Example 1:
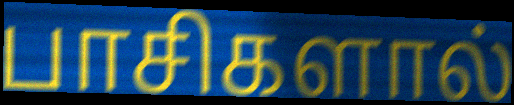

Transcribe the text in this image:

பாசிகளால்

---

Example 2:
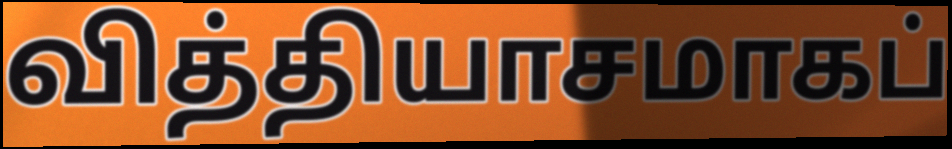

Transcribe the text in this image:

வித்தியாசமாகப்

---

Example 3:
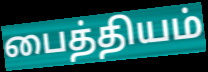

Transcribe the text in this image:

பைத்தியம்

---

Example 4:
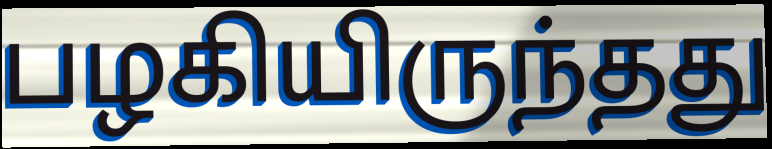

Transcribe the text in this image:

பழகியிருந்தது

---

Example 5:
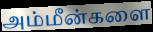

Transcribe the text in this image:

அம்மீன்களை